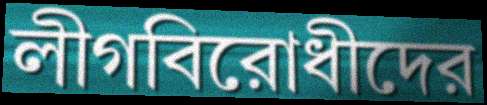
লীগবিরোধীদের